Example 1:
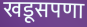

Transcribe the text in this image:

खडूसपणा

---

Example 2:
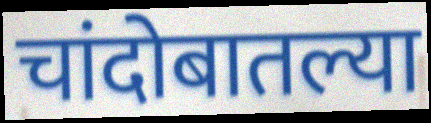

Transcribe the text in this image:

चांदोबातल्या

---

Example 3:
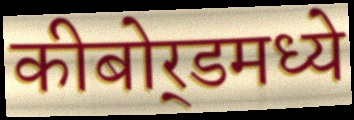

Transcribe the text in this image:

कीबोर्डमध्ये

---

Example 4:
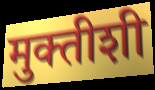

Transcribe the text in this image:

मुक्तीशी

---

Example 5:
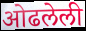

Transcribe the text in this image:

ओढलेली